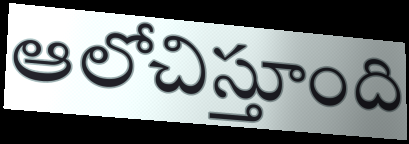
ఆలోచిస్తూంది